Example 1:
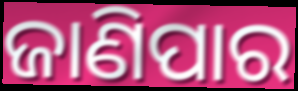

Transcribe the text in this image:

ଜାଣିପାର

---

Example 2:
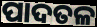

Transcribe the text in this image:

ପାଦତଳ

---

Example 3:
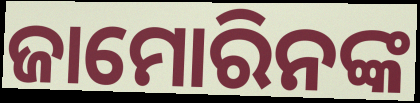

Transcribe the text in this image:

ଜାମୋରିନଙ୍କ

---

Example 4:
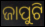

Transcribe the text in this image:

ଜାପୁଟି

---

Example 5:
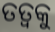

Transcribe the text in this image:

ତତ୍ୱକୁ